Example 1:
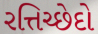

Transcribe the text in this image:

રત્તિચ્છેદો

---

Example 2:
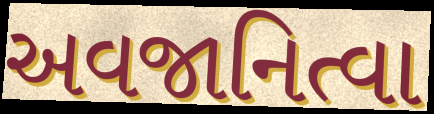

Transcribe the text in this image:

અવજાનિત્વા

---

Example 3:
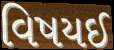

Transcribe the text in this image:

વિષયઈ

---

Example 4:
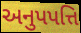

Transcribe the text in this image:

અનુપપત્તિ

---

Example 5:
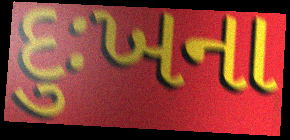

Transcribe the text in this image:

દુઃખના